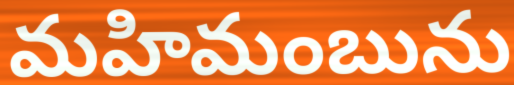
మహిమంబును